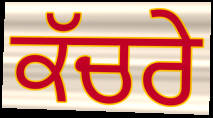
ਕੱਚਰੇ